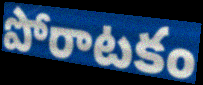
పోరాటకం